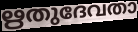
ഋതുദേവതാ